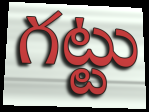
గట్టు